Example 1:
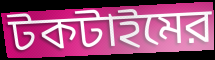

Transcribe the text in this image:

টকটাইমের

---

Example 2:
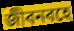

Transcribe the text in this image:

জীবনবহে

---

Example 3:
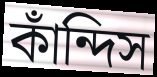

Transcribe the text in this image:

কাঁন্দিস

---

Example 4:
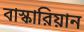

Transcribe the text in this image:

বাস্কারিয়ান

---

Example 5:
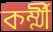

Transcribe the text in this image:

কর্ম্মী